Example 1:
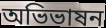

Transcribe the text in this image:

অভিভাষন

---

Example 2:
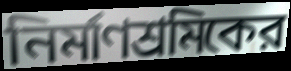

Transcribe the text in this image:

নির্মাণশ্রমিকের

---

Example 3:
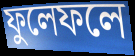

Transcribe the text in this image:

ফুলেফলে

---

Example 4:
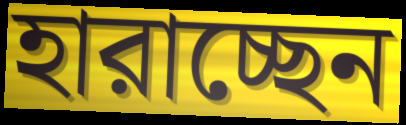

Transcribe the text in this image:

হারাচ্ছেন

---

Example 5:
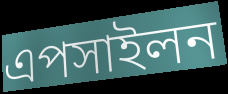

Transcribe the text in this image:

এপসাইলন